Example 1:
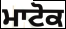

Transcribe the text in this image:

ਮਾਟੋਕ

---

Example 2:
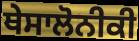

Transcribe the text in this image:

ਥੇਸਾਲੋਨੀਕੀ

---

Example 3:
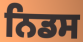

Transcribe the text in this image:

ਨਿਡਸ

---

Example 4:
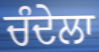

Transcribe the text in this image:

ਚੰਦੇਲਾ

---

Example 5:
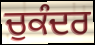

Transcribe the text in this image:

ਚੁਕੰਦਰ